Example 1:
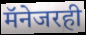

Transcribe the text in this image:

मॅनेजरही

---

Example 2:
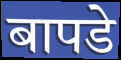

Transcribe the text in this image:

बापडे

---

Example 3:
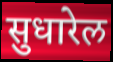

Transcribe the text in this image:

सुधारेल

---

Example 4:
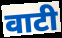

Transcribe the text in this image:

वाटी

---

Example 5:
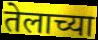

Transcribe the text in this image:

तेलाच्या